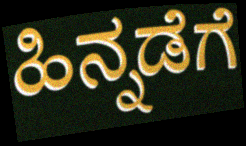
ಹಿನ್ನಡೆಗೆ